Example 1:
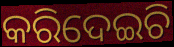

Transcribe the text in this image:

କରିଦେଇଚି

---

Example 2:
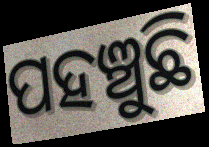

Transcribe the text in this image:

ପହଞ୍ଚୁଛି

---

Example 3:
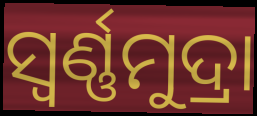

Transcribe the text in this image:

ସ୍ୱର୍ଣ୍ଣମୁଦ୍ରା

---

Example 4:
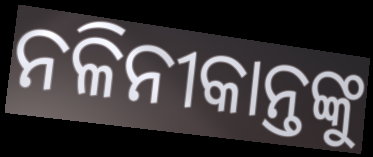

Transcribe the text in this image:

ନଳିନୀକାନ୍ତଙ୍କୁ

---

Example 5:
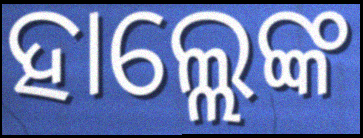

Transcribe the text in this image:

ହାଲ୍ଲେଙ୍କ